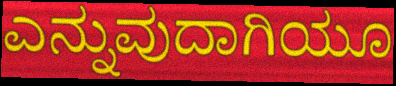
ಎನ್ನುವುದಾಗಿಯೂ